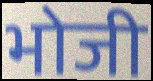
भोजी